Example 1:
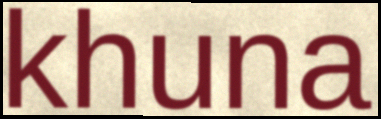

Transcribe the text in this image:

khuna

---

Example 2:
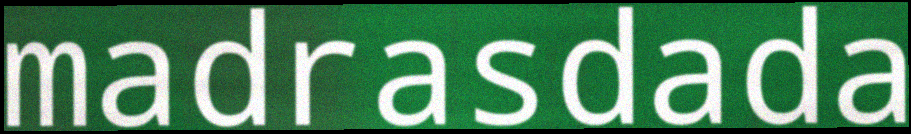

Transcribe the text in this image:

madrasdada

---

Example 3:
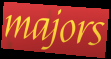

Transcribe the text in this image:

majors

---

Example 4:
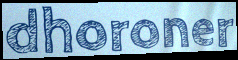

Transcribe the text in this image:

dhoroner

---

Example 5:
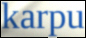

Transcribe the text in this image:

karpu